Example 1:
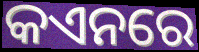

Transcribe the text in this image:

କଏନରେ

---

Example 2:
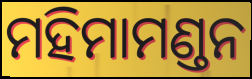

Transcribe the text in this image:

ମହିମାମଣ୍ଡନ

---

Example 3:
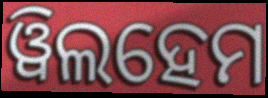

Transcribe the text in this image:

ୱିଲହେମ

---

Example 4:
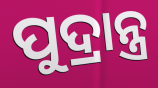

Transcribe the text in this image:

ପୁଦ୍ରାନ୍ତ୍ର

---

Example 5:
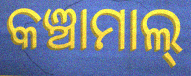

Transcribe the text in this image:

କଞ୍ଚାମାଲ୍